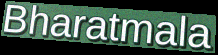
Bharatmala